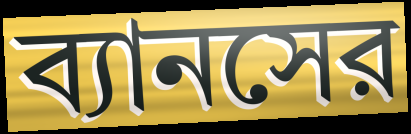
ব্যানসের